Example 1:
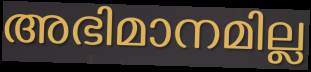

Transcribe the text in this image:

അഭിമാനമില്ല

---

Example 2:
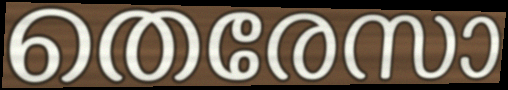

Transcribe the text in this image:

തെരേസാ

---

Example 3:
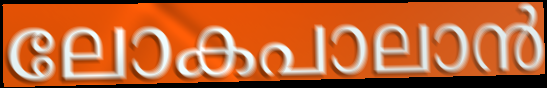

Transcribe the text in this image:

ലോകപാലാൻ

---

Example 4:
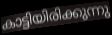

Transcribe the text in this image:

കാട്ടിയിരിക്കുന്നു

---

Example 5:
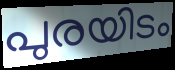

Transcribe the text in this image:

പുരയിടം